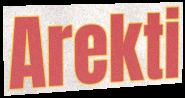
Arekti